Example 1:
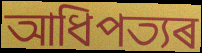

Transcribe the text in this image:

আধিপত্যৰ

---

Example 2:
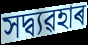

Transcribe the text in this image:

সদ্ব্যৱহাৰ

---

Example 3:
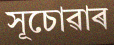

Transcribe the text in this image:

সূচোৱাৰ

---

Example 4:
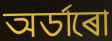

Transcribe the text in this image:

অৰ্ডাৰো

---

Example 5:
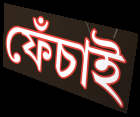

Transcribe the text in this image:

ফেঁচাই